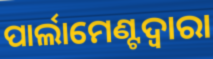
ପାର୍ଲାମେଣ୍ଟଦ୍ୱାରା